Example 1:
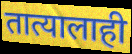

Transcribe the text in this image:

तात्यालाही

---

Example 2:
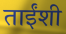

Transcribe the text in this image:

ताईंशी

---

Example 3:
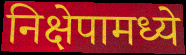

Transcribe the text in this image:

निक्षेपामध्ये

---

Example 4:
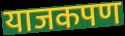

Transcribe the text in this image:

याजकपण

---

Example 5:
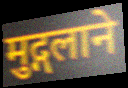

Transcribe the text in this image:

मुद्गलाने